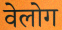
वेलोग